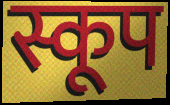
स्कूप